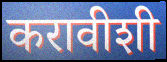
करावीशी